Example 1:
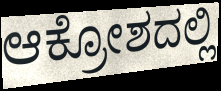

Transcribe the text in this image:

ಆಕ್ರೋಶದಲ್ಲಿ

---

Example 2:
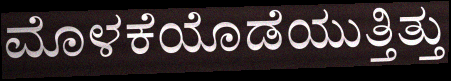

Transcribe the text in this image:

ಮೊಳಕೆಯೊಡೆಯುತ್ತಿತ್ತು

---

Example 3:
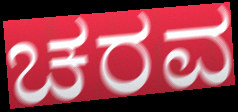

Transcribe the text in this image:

ಚರವ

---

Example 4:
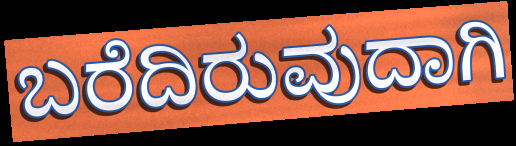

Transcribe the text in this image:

ಬರೆದಿರುವುದಾಗಿ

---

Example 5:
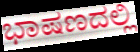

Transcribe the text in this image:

ಭಾಷಣದಲ್ಲಿ